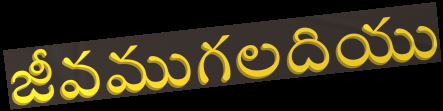
జీవముగలదియు